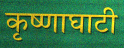
कृष्णाघाटी